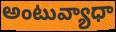
అంటువ్యాధా